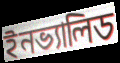
ইনভ্যালিড